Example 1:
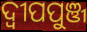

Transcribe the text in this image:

ଦ୍ୱୀପପୁଞ୍ଜ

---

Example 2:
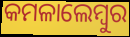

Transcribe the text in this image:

କମଳାଲେମ୍ବୁର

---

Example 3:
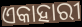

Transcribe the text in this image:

ଏକାହାରୀ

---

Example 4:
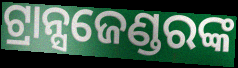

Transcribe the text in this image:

ଟ୍ରାନ୍ସଜେଣ୍ଡରଙ୍କ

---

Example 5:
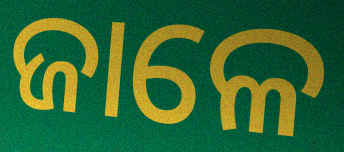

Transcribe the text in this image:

ଜାଳେ